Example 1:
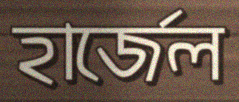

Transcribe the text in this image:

হার্জেল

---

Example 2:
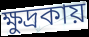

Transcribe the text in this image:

ক্ষুদ্রকায়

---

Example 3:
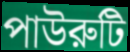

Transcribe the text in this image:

পাউরুটি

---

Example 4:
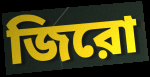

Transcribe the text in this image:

জিরো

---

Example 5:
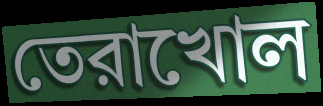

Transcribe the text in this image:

তেরাখোল